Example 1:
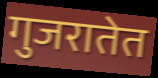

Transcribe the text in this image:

गुजरातेत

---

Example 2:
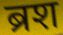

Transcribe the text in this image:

ब्रश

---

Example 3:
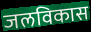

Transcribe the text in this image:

जलविकास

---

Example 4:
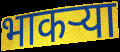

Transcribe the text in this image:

भाकऱ्या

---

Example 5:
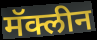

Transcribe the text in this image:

मॅक्लीन